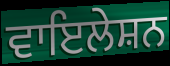
ਵਾਇਲੇਸ਼ਨ